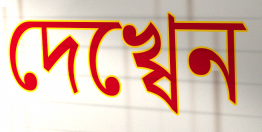
দেখ্বেন